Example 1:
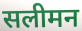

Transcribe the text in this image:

सलीमन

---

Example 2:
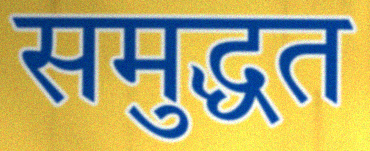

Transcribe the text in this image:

समुद्धत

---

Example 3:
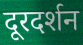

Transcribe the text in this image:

दूरदर्शन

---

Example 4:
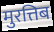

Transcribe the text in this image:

मुरत्तिब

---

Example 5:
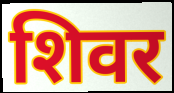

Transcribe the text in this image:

शिवर